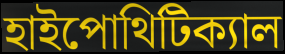
হাইপোথিটিক্যাল